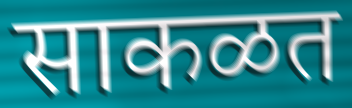
साकळत